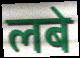
लबे